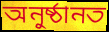
অনুষ্ঠানত